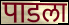
पाडला